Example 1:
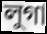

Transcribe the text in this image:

লুগা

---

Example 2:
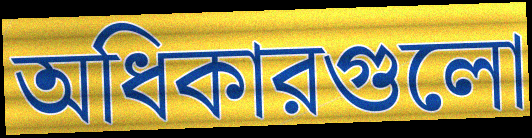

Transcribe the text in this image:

অধিকারগুলো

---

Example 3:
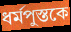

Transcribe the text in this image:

ধর্মপুস্তকে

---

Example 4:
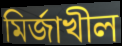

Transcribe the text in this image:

মির্জাখীল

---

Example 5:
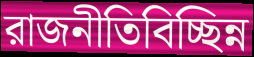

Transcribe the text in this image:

রাজনীতিবিচ্ছিন্ন